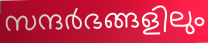
സന്ദർഭങ്ങളിലും